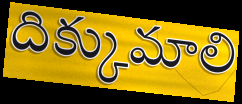
దిక్కుమాలి